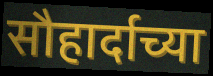
सौहार्दाच्या